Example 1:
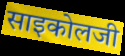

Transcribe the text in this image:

साइकोलजी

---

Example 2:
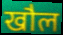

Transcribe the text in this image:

खौल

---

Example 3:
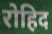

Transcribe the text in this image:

रोहिद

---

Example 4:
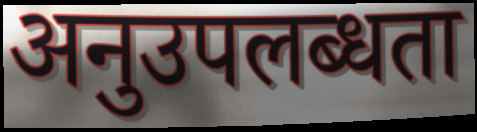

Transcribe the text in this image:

अनुउपलब्धता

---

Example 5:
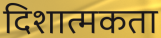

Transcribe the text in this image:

दिशात्मकता